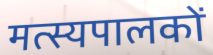
मत्स्यपालकों